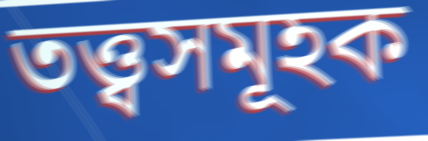
তত্ত্বসমূহক